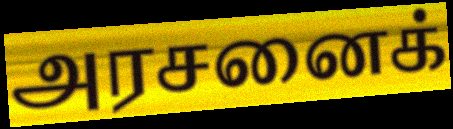
அரசனைக்